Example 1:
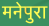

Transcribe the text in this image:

मनेपुरा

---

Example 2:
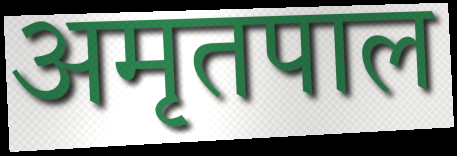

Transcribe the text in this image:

अमृतपाल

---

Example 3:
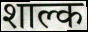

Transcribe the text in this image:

शाल्क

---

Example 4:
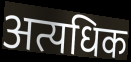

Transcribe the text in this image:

अत्यधिक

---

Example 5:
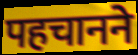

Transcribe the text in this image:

पहचानने